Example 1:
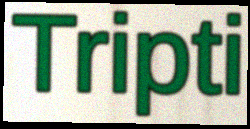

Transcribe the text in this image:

Tripti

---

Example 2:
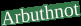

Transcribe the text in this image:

Arbuthnot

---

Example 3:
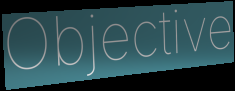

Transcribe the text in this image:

Objective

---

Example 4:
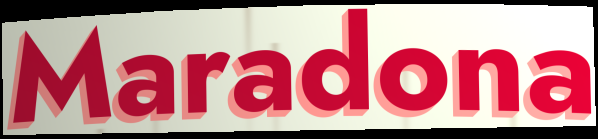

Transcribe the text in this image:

Maradona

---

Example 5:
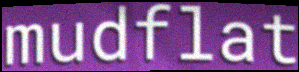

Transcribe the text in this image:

mudflat